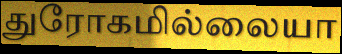
துரோகமில்லையா